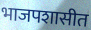
भाजपशासीत